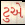
ટુએ